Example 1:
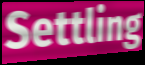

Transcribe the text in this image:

Settling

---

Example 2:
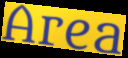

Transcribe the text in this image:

Area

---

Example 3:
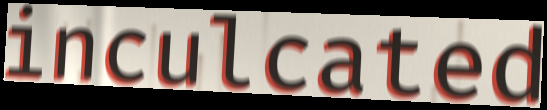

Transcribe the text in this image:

inculcated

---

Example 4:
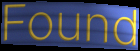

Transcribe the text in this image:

Found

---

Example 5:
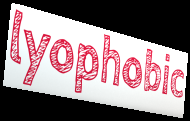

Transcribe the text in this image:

lyophobic